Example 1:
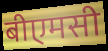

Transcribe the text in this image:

बीएमसी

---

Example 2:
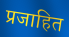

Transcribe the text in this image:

प्रजाहित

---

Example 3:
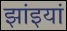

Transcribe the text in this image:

झांइयां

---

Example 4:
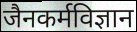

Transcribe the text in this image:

जैनकर्मविज्ञान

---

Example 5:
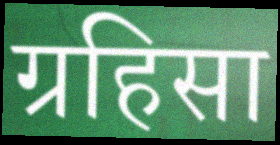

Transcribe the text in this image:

ग्रहिसा